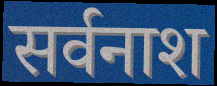
सर्वनाश